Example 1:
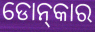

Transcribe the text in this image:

ଡୋନ୍‍କାର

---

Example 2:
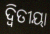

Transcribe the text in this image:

ଦ୍ବିତୀୟା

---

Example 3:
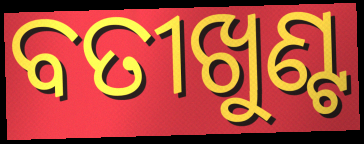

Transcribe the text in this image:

ବତୀଖୁଣ୍ଟ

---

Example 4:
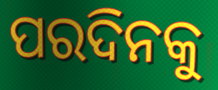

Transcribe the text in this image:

ପରଦିନକୁ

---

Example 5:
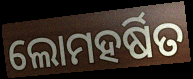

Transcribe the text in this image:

ଲୋମହର୍ଷିତ